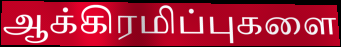
ஆக்கிரமிப்புகளை